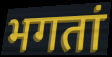
भगतां